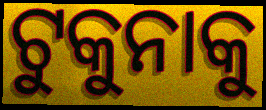
ଟୁକୁନାକୁ